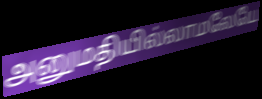
அனுமதியில்லாமலேயே